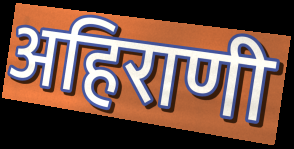
अहिराणी